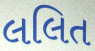
લલિત